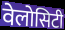
वेलोसिटी